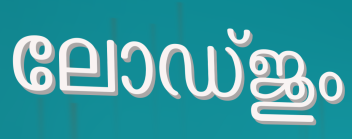
ലോഡ്ജും